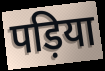
पड़िया